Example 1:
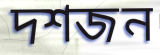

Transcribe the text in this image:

দশজন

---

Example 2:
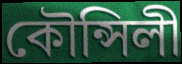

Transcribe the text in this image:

কৌন্সিলী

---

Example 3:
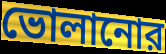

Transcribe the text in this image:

ভোলানোর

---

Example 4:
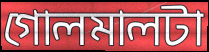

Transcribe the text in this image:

গোলমালটা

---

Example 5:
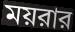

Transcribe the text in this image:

ময়রার